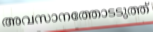
അവസാനത്തോടടുത്ത്